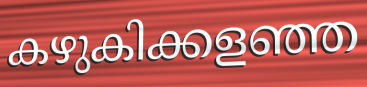
കഴുകിക്കളഞ്ഞ